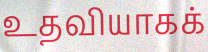
உதவியாகக்